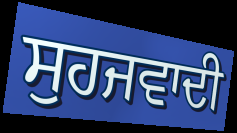
ਸੁਹਜਵਾਦੀ